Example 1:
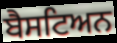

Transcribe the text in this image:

ਬੈਸਟਿਅਨ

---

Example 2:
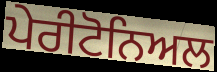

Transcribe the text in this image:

ਪੇਰੀਟੋਨਿਅਲ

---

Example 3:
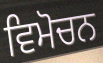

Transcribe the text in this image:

ਵਿਮੋਚਨ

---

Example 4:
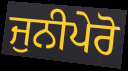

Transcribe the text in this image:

ਜੁਨੀਪੇਰੋ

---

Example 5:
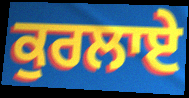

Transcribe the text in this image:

ਕੁਰਲਾਏ